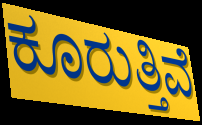
ಕೂರುತ್ತಿವೆ